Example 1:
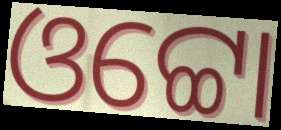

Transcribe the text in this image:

ଓଟ୍ଟୋ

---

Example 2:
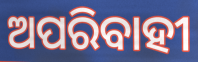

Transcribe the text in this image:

ଅପରିବାହୀ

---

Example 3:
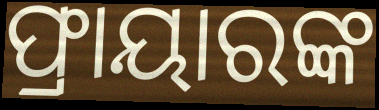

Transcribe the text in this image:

ଫ୍ରାୟାରଙ୍କ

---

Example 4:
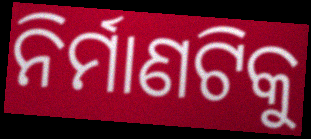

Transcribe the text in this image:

ନିର୍ମାଣଟିକୁ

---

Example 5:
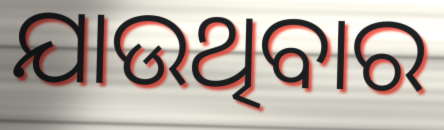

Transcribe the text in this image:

ଯାଉଥିବାର